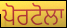
ਪੋਰਟੋਲਾ